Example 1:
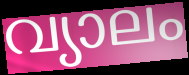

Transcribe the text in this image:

വ്യാലം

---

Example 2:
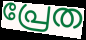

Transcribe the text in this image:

പ്രേത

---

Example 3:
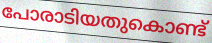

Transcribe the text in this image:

പോരാടിയതുകൊണ്ട്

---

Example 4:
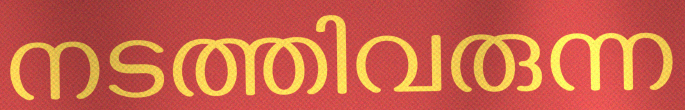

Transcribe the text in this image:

നടത്തിവരുന്ന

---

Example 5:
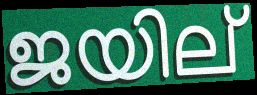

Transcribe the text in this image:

ജയില്